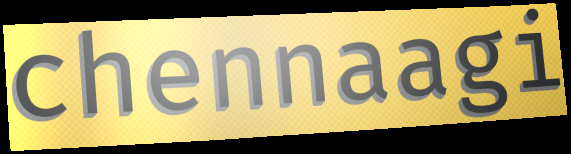
chennaagi